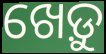
ଖେଡ଼ୁ